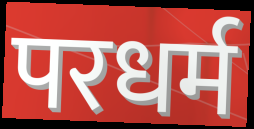
परधर्म